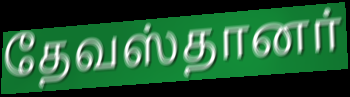
தேவஸ்தானர்